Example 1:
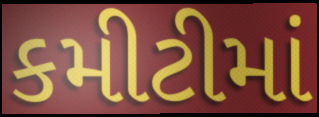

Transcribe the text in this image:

કમીટીમાં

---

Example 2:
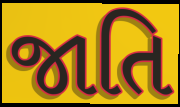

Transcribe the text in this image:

જાતિ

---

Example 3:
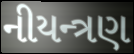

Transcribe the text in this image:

નીયન્ત્રણ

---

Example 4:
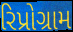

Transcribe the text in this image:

રિપ્રોગ્રામ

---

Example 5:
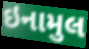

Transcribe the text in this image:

ઇનામુલ